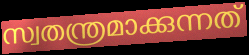
സ്വതന്ത്രമാക്കുന്നത്